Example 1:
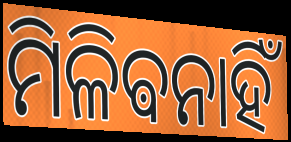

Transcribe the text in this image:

ମିଳିଵନାହିଁ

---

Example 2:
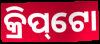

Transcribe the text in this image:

କ୍ରିପ୍‌ଟୋ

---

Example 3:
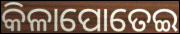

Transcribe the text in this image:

କିଳାପୋତେଇ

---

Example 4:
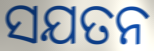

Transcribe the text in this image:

ସଯତନ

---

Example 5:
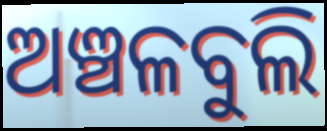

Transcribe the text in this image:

ଅଞ୍ଚଳବୁଲି